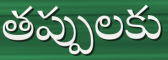
తప్పులకు